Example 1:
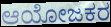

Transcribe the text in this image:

ಆಯೋಜಕರ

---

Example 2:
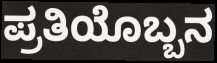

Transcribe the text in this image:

ಪ್ರತಿಯೊಬ್ಬನ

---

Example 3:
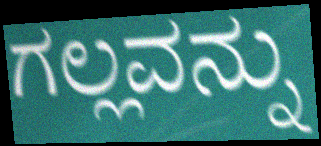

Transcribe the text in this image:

ಗಲ್ಲವನ್ನು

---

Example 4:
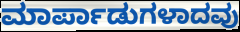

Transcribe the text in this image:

ಮಾರ್ಪಾಡುಗಳಾದವು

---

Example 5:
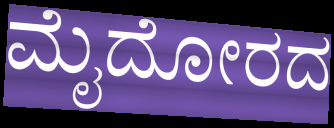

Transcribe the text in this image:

ಮೈದೋರದ